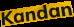
Kandan